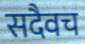
सदैवच